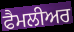
ਫੈਮਲੀਅਰ